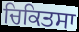
ਚਿਕਿਤਸਾ